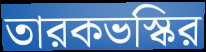
তারকভস্কির